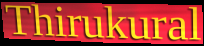
Thirukural